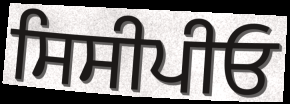
ਸਿਸੀਪੀਓ